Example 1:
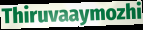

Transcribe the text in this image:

Thiruvaaymozhi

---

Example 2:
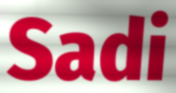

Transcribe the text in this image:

Sadi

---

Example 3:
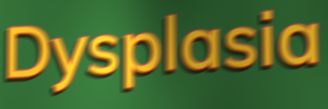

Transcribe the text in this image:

Dysplasia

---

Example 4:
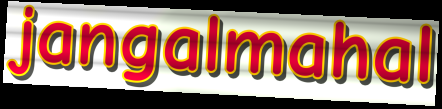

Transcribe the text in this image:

jangalmahal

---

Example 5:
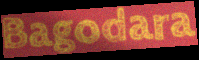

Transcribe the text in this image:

Bagodara